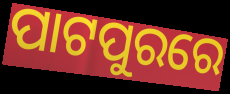
ପାଟପୁରରେ